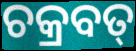
ଚକ୍ରବତ୍